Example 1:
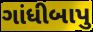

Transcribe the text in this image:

ગાંધીબાપુ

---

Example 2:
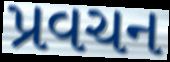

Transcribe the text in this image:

પ્રવચન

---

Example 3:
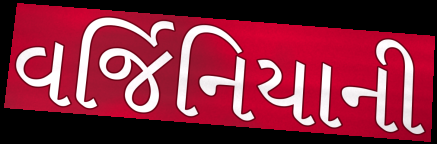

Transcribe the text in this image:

વર્જિનિયાની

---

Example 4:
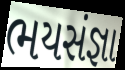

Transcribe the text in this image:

ભયસંજ્ઞા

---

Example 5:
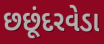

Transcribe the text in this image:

છછૂંદરવેડા